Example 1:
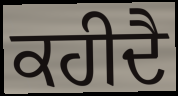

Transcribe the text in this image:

ਕਹੀਦੈ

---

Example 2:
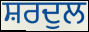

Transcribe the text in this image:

ਸ਼ਰਦੁਲ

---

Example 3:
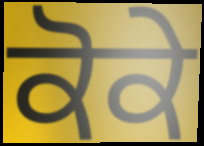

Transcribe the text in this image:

ਕੋਕੇ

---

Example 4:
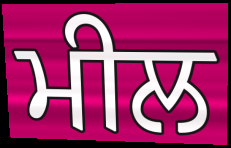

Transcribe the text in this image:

ਮੀਲ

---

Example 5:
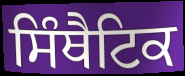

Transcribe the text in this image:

ਸਿੰਥੈਟਿਕ